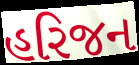
હરિજન